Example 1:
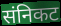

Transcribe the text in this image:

संनिकट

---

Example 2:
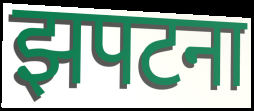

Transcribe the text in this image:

झपटना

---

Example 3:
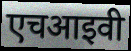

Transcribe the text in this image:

एचआइवी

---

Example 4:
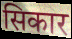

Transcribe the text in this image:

सिकार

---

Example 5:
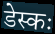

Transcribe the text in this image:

डेस्कः